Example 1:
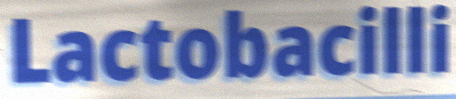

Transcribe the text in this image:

Lactobacilli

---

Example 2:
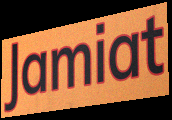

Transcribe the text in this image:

Jamiat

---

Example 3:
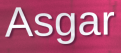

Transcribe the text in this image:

Asgar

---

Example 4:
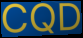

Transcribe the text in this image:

CQD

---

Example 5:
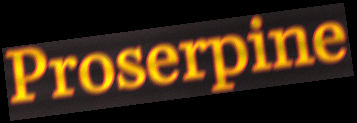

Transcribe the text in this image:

Proserpine